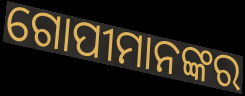
ଗୋପୀମାନଙ୍କର